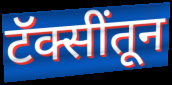
टॅक्सींतून